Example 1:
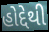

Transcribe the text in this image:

હોદ્દેથી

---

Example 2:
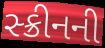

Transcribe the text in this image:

સ્ક્રીનની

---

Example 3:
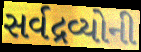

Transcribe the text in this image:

સર્વદ્રવ્યોની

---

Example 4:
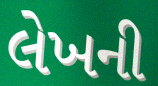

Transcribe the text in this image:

લેખની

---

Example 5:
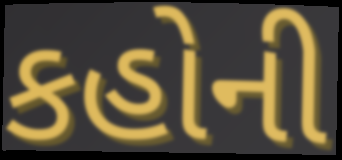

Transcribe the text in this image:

કહોની